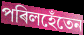
পৰিলহেঁতেন